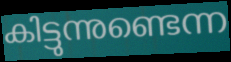
കിട്ടുന്നുണ്ടെന്ന